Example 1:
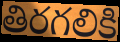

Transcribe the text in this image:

తిరగలికి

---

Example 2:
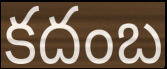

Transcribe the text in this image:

కదంబ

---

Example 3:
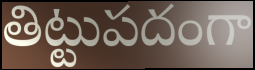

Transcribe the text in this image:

తిట్టుపదంగా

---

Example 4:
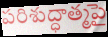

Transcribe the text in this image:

పరిశుద్ధాత్మపై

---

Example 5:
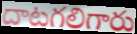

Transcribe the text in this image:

దాటగలిగారు